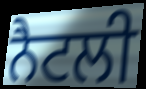
ਨੈਟਲੀ